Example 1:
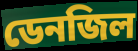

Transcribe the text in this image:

ডেনজিল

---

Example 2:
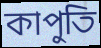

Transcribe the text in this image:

কাপুতি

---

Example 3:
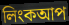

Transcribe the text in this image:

লিংকআপ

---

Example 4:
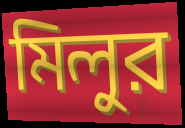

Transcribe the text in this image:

মিলুর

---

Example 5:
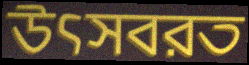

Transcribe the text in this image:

উৎসবরত